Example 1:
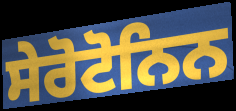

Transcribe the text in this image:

ਸੇਰੋਟੋਨਿਨ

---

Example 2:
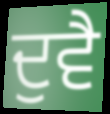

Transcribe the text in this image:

ਦੁਵੈ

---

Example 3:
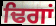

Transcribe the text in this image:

ਢਿਗਾਂ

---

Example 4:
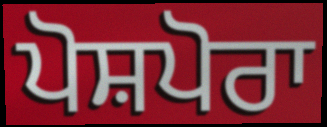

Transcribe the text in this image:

ਪੋਸ਼ਪੋਰਾ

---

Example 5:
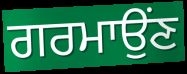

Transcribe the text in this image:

ਗਰਮਾਉਂਣ